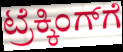
ಟ್ರೆಕ್ಕಿಂಗ್‌ಗೆ